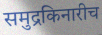
समुद्रकिनारीच